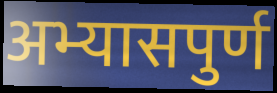
अभ्यासपुर्ण